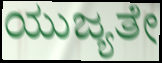
ಯುಜ್ಯತೇ